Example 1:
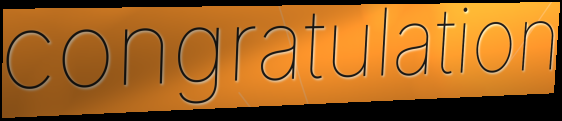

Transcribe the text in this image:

congratulation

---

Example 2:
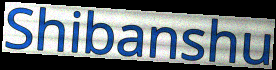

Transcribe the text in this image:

Shibanshu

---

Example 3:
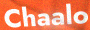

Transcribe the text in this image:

Chaalo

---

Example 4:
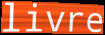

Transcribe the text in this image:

livre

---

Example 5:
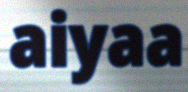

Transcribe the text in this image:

aiyaa